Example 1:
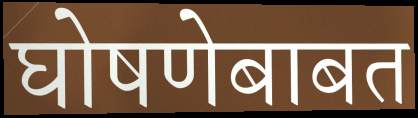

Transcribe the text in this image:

घोषणेबाबत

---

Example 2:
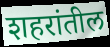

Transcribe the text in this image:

शहरांतील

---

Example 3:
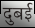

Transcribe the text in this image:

दुबई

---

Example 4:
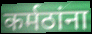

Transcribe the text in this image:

कर्मठांना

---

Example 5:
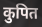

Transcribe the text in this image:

कुपित